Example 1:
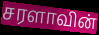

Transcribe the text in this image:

சரளாவின்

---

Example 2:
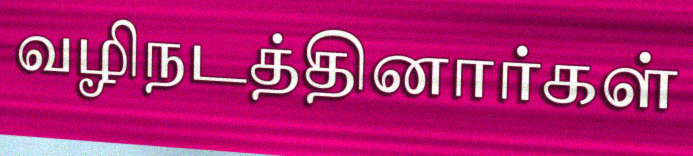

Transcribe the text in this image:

வழிநடத்தினார்கள்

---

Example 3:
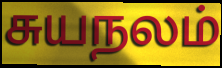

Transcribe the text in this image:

சுயநலம்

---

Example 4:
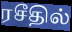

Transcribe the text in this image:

ரசீதில்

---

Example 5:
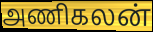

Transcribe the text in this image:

அணிகலன்